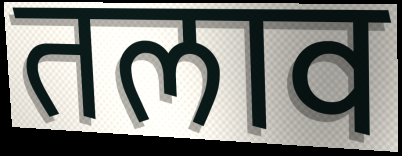
तलाव